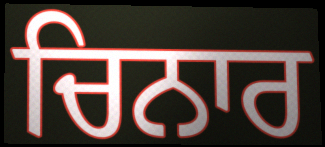
ਚਿਨਾਰ